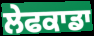
ਲੇਫਕਾਡਾ